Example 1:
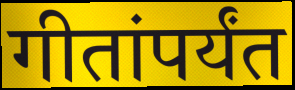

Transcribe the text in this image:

गीतांपर्यंत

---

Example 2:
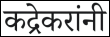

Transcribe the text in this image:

कद्रेकरांनी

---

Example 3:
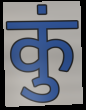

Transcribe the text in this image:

कुं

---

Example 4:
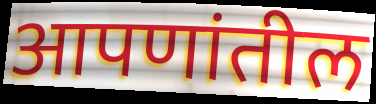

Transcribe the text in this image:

आपणांतील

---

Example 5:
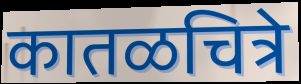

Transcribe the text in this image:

कातळचित्रे